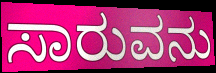
ಸಾರುವನು